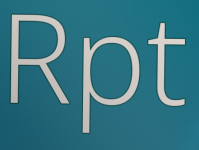
Rpt